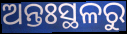
ଅନ୍ତଃସ୍ଥଳରୁ